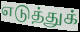
எடுத்துக்